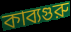
কাব্যগুরু